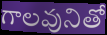
గాలవునితో